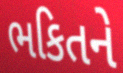
ભકિતને